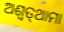
ଅଶ୍ବତ୍‌ଥାମା